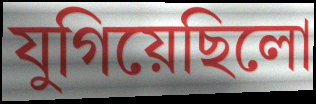
যুগিয়েছিলো